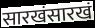
सारखंसारखं